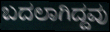
ಬದಲಾಗಿದ್ದವು